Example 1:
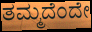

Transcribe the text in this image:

ತಮ್ಮದೆಂದೇ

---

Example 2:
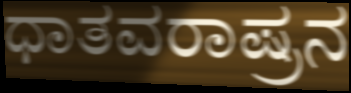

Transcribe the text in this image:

ಧಾತವರಾಷ್ರನ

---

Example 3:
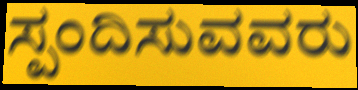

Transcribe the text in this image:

ಸ್ಪಂದಿಸುವವರು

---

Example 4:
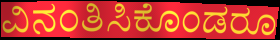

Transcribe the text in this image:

ವಿನಂತಿಸಿಕೊಂಡರೂ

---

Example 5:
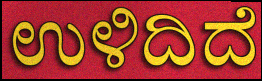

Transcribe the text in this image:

ಉಳಿದಿದೆ